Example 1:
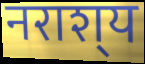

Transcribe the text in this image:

नराश्य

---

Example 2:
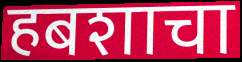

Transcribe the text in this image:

हबशाचा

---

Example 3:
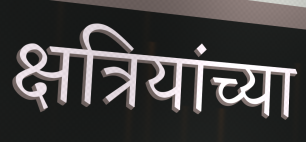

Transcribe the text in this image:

क्षत्रियांच्या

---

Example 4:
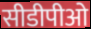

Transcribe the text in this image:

सीडीपीओ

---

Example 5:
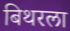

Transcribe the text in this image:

बिथरला